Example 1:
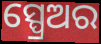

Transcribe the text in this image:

ସ୍ପ୍ରେଅର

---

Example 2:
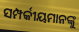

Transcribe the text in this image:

ସମ୍ପର୍କୀୟମାନଙ୍କୁ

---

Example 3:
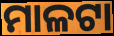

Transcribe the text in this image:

ମାଳଟା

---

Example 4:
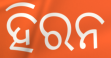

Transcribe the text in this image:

ହିରନ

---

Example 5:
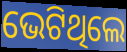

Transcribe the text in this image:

ଭେଟିଥିଲେ